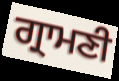
ਗ੍ਰਾਮਣੀ